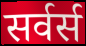
सर्वर्स